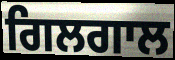
ਗਿਲਗਾਲ